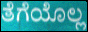
ತೆಗೆಯೊಲ್ಲ